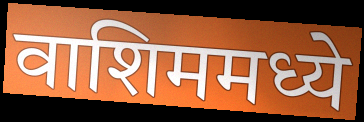
वाशिममध्ये